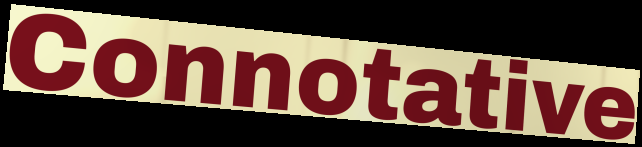
Connotative